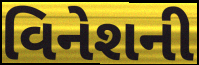
વિનેશની